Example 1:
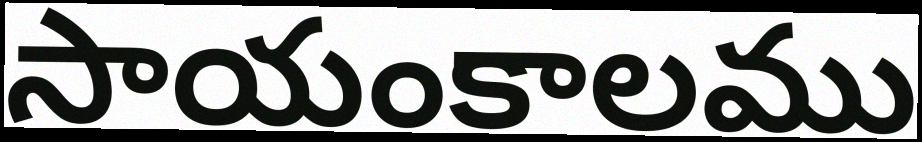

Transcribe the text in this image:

సాయంకాలము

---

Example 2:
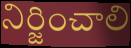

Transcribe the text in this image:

నిర్జించాలి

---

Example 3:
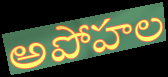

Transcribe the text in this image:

అపోహల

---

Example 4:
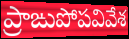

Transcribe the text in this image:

ప్రాఙుపోపవివేశ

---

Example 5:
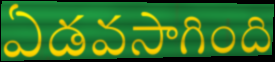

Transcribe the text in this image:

ఏడవసాగింది